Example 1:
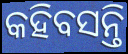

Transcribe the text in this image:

କହିବସନ୍ତି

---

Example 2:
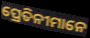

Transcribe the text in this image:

ପ୍ରେତିନୀମାନେ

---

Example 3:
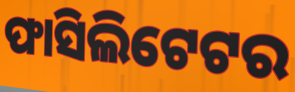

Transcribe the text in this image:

ଫାସିଲିଟେଟର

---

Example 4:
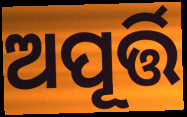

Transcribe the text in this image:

ଅପୂର୍ତ୍ତି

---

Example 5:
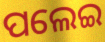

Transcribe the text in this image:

ପଲେଇ